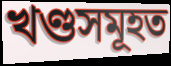
খণ্ডসমূহত